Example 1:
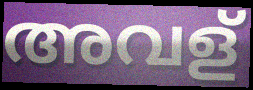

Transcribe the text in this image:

അവള്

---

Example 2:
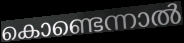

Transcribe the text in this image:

കൊണ്ടെന്നാൽ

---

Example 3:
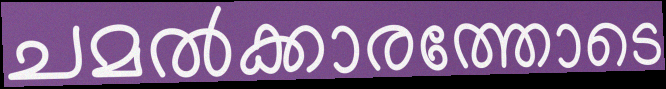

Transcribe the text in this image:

ചമൽക്കാരത്തോടെ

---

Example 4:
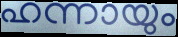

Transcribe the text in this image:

ഹന്നായും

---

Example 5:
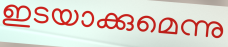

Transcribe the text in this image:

ഇടയാക്കുമെന്നു